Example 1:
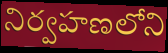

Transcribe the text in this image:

నిర్వహణలోని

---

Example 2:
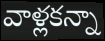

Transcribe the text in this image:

వాళ్లకన్నా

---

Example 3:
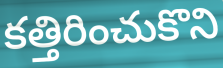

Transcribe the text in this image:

కత్తిరించుకొని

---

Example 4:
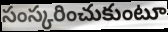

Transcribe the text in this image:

సంస్కరించుకుంటూ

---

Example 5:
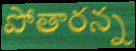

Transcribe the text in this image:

పోతారన్న